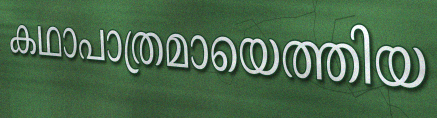
കഥാപാത്രമായെത്തിയ